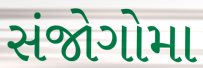
સંજોગોમા